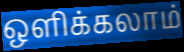
ஒளிக்கலாம்